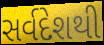
સર્વદેશથી